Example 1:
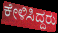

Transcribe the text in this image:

ಕೇಳಿಸಿದ್ದರು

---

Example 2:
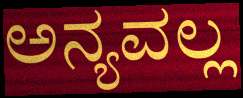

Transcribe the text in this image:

ಅನ್ಯವಲ್ಲ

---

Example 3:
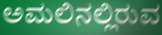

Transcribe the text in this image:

ಅಮಲಿನಲ್ಲಿರುವ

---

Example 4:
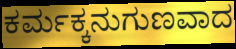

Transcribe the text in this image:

ಕರ್ಮಕ್ಕನುಗುಣವಾದ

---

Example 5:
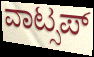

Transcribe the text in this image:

ವಾಟ್ಸಪ್